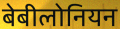
बेबीलोनियन